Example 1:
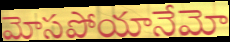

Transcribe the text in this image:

మోసపోయానేమో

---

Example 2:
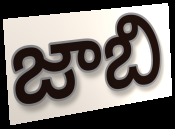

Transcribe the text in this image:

జాబి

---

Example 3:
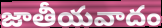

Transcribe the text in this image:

జాతీయవాదం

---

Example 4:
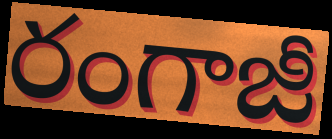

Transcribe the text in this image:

రంగాజీ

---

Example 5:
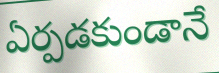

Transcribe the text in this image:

ఏర్పడకుండానే